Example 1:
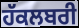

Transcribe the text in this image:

ਹੱਕਲਬਰੀ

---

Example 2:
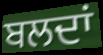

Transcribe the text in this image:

ਬਲਦਾਂ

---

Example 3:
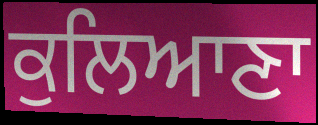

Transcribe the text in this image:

ਕੁਲਿਆਣਾ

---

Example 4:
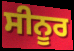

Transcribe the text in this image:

ਸੀਨੂਰ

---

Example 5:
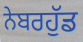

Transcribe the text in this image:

ਨੇਬਰਹੁੱਡ